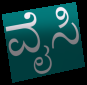
ವೈಸಿ